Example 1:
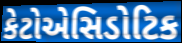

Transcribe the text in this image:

કેટોએસિડોટિક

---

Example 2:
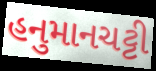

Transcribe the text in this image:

હનુમાનચટ્ટી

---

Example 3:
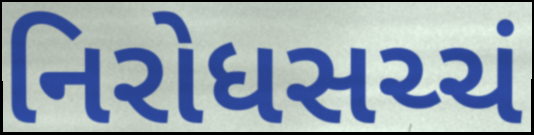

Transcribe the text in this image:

નિરોધસચ્ચં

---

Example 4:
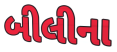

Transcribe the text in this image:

બીલીના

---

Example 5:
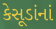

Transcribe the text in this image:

કેસૂડાંનાં